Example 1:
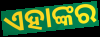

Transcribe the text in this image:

ଏହାଙ୍କର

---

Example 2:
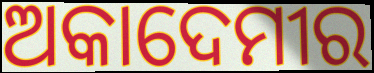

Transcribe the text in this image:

ଅକାଦେମୀର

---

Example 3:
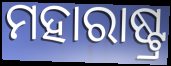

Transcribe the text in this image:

ମହାରାଷ୍ଟ୍ର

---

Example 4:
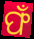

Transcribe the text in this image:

ଫଁ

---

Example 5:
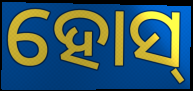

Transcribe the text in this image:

ହୋସ୍